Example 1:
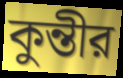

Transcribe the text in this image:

কুন্তীর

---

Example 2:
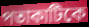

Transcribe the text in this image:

পতাকাটিকে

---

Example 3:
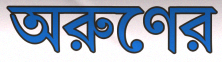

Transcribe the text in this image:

অরুণের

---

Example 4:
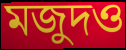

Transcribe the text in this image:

মজুদও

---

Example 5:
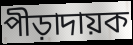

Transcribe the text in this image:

পীড়াদায়ক